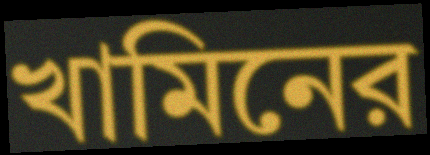
খামিনের